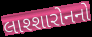
લાશ્શારોનનો